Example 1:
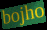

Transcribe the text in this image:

bojho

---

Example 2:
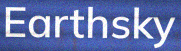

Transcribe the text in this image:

Earthsky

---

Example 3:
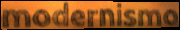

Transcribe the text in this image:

modernismo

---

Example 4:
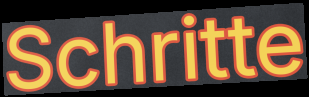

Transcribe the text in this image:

Schritte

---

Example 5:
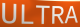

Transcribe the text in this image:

ULTRA